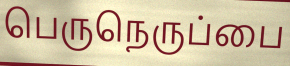
பெருநெருப்பை